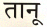
तानू